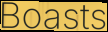
Boasts